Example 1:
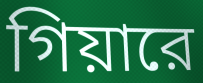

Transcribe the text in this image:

গিয়ারে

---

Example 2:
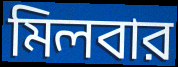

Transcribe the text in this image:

মিলবার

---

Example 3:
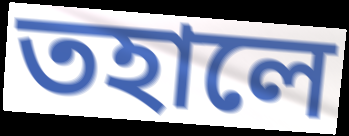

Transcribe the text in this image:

তহালে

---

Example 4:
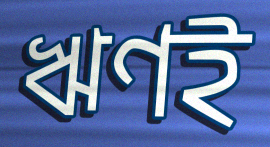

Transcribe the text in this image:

ঋণই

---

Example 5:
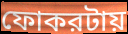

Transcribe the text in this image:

ফোকরটায়